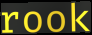
rook